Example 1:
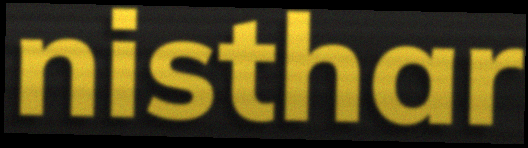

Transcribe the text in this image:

nisthar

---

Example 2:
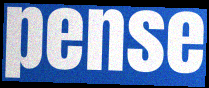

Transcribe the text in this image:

pense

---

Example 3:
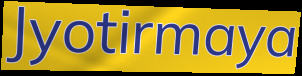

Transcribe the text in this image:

Jyotirmaya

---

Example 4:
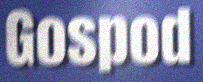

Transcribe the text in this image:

Gospod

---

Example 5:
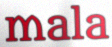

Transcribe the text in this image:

mala